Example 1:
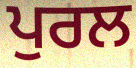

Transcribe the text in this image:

ਪੁਰਲ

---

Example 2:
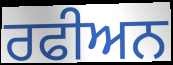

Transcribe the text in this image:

ਰਫੀਅਨ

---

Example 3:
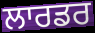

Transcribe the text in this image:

ਲਾਰਡਰ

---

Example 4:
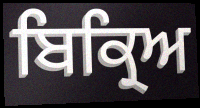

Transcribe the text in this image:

ਬਿਕ੍ਰਿਅ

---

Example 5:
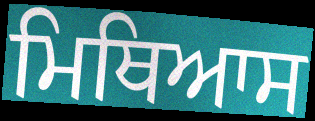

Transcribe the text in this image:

ਮਿਥਿਆਸ